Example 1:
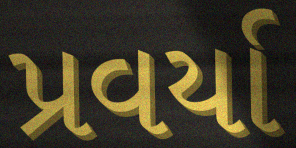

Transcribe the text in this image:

પ્રવર્યા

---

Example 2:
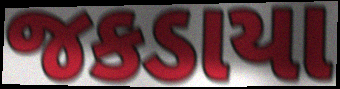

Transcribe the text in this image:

જકડાયા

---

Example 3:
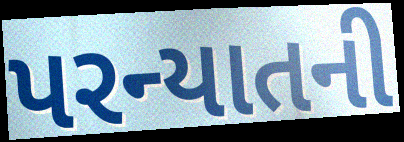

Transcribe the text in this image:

પરન્યાતની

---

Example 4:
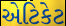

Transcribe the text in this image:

એટિકેટ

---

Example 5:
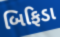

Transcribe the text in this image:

બિફિડા